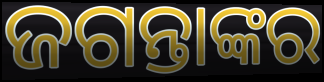
ଜଗନ୍ତାଙ୍କର